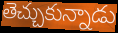
తెచ్చుకున్నాడు